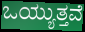
ಒಯ್ಯುತ್ತವೆ